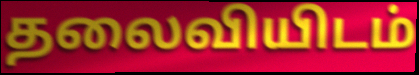
தலைவியிடம்